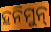
ହନିମୁନ୍